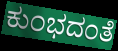
ಕುಂಭದಂತೆ